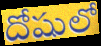
దోషులో